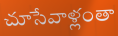
చూసేవాళ్లంతా